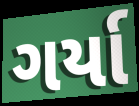
ગર્યા